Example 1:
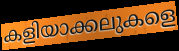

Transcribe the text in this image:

കളിയാക്കലുകളെ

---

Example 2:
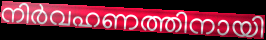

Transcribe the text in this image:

നിർവഹണത്തിനായി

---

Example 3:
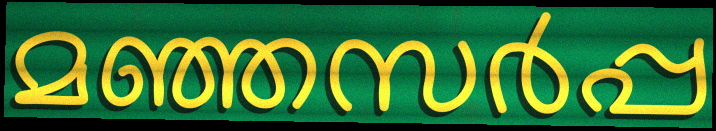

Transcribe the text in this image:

മഞ്ഞസർപ്പ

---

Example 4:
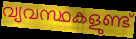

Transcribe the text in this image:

വ്യവസ്ഥകളുണ്ട്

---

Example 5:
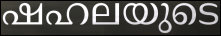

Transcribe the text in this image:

ഷഹലയുടെ